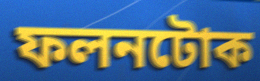
ফলনটোক